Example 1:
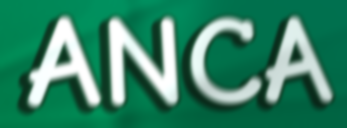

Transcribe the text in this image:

ANCA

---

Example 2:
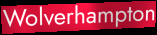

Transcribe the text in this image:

Wolverhampton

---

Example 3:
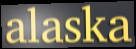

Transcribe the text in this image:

alaska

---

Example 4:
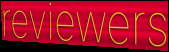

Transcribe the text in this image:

reviewers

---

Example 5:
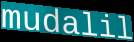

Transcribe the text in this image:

mudalil